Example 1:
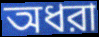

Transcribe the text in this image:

অধরা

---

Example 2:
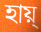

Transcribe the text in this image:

হায়্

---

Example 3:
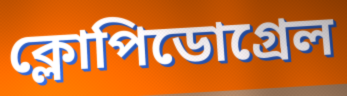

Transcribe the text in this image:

ক্লোপিডোগ্রেল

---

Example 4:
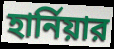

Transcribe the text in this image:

হার্নিয়ার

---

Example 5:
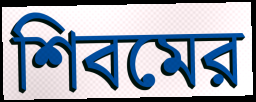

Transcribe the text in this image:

শিবমের